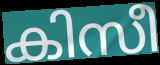
കിസീ